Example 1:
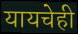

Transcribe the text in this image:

यायचेही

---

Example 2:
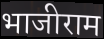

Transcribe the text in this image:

भाजीराम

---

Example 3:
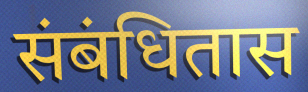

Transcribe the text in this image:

संबंधितास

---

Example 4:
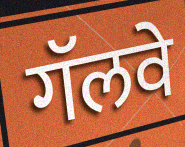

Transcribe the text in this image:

गॅलवे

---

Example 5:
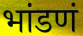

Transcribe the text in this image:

भांडणं